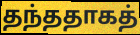
தந்ததாகத்